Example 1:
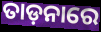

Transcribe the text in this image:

ତାଡ଼ନାରେ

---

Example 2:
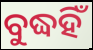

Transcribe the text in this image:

ବୁଦ୍ଧହିଁ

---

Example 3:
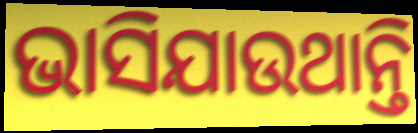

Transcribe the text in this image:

ଭାସିଯାଉଥାନ୍ତି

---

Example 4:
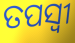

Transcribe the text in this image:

ତପସ୍ବୀ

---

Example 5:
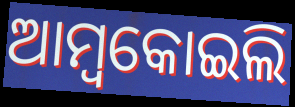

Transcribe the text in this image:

ଆମ୍ବକୋଇଲି